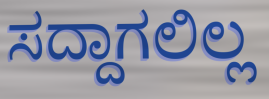
ಸದ್ದಾಗಲಿಲ್ಲ